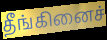
தீங்கினைச்